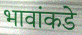
भावांकडे